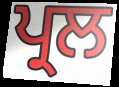
ਪ੍ਰਲ